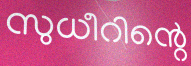
സുധീറിന്റെ